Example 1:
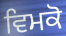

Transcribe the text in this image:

ਵਿਮਕੋ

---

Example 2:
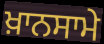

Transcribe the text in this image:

ਖ਼ਾਨਸਾਮੇ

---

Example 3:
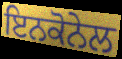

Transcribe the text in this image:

ਇਨਕੋਨੇਲ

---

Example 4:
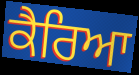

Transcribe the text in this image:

ਕੈਰਿਆ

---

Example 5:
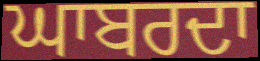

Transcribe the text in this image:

ਘਾਬਰਦਾ